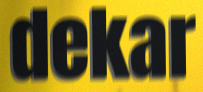
dekar